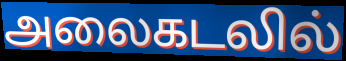
அலைகடலில்